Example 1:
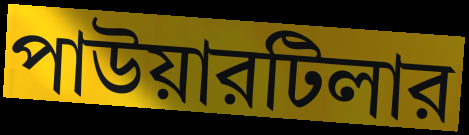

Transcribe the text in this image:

পাউয়ারটিলার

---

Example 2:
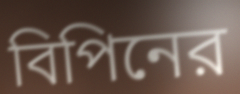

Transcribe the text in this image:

বিপিনের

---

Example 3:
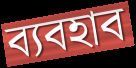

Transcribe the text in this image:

ব্যবহাব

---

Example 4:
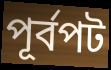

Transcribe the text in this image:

পূর্বপট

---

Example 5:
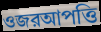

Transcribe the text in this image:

ওজরআপত্তি